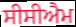
ਸੀਸੀਐਮ